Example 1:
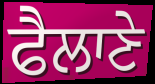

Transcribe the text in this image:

ਫੈਲਾਣੇ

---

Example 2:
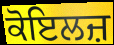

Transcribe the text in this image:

ਕੋਇਲਜ਼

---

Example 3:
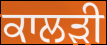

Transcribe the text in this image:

ਕਾਲੜੀ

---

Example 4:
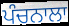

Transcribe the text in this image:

ਪੰਚਨਾਲਾ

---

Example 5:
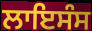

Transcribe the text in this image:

ਲਾਇਸੰਸ